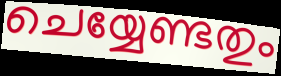
ചെയ്യേണ്ടതും